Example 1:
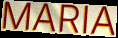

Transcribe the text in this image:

MARIA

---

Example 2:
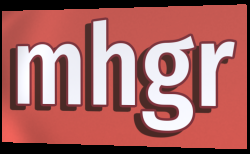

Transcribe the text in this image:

mhgr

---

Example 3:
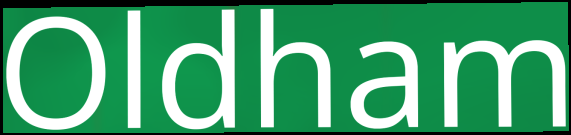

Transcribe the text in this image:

Oldham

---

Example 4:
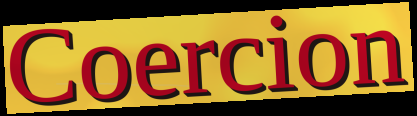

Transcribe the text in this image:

Coercion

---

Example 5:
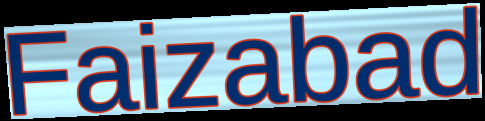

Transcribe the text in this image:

Faizabad